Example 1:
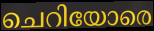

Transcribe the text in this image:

ചെറിയോരെ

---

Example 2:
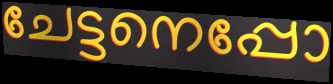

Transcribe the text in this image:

ചേട്ടനെപ്പോ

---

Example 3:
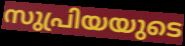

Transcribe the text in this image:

സുപ്രിയയുടെ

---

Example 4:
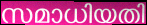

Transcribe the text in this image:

സമാധിയതി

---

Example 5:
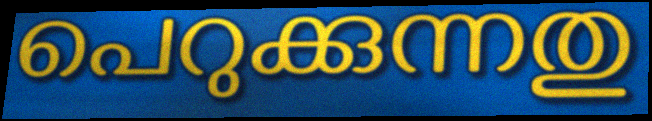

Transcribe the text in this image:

പെറുക്കുന്നതു